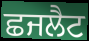
ਛਜਲੈਟ